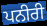
ਪਨੀਰੀ